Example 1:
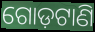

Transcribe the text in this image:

ଗୋଡ଼ଟାଣି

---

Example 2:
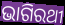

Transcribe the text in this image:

ଭାଗିରଥୀ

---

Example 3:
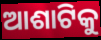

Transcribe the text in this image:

ଆଶାଟିକୁ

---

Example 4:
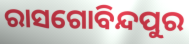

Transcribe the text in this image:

ରାସଗୋବିନ୍ଦପୁର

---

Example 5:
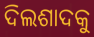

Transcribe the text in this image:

ଦିଲଶାଦକୁ